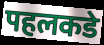
पहलकडे